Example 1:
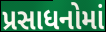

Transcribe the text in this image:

પ્રસાધનોમાં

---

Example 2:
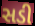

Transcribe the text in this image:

સડી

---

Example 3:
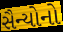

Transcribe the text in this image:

સૈન્યોનો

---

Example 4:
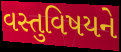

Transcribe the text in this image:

વસ્તુવિષયને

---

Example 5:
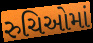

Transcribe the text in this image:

રુચિઓમાં